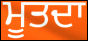
ਮੂਤਦਾ